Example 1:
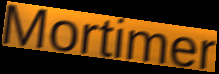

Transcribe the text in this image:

Mortimer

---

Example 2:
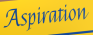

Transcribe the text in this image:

Aspiration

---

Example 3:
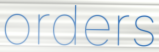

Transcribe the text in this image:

orders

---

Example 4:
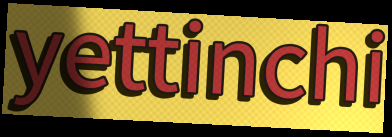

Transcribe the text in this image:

yettinchi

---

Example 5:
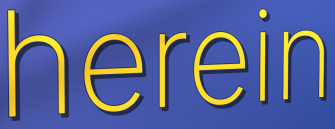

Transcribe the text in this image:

herein